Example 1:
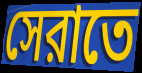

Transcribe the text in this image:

সেরাতে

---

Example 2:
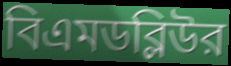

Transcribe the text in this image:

বিএমডব্লিউর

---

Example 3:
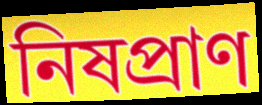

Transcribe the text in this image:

নিষপ্রাণ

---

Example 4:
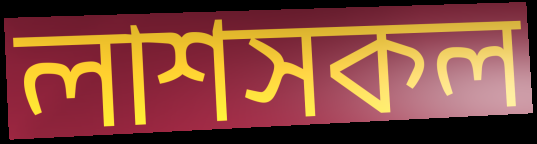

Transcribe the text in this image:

লাশসকল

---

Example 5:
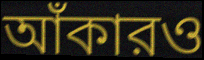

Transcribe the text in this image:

আঁকারও